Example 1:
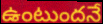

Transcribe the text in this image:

ఉంటుందనే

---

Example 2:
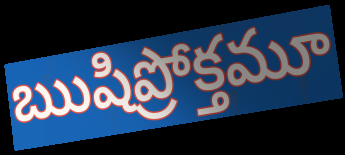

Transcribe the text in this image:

ఋషిప్రోక్తమూ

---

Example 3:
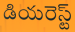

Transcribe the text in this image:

డియరెస్ట్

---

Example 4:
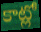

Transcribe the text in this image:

కాట్లో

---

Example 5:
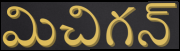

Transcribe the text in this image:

మిచిగన్